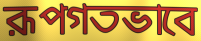
রূপগতভাবে